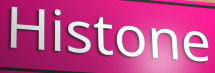
Histone